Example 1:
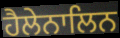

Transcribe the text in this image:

ਹੈਲੇਨਾਲਿਨ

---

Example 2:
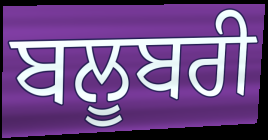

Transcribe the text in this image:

ਬਲੂਬਰੀ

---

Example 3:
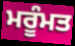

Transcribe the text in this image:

ਮਰੂੰਮਤ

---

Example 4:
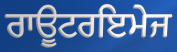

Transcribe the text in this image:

ਰਾਊਟਰਇਮੇਜ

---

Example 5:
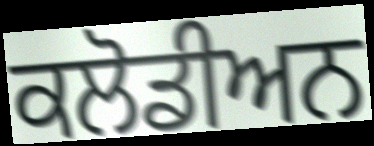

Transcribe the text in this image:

ਕਲੋਡੀਅਨ